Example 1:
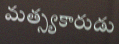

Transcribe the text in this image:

మత్స్యకారుడు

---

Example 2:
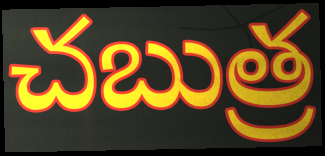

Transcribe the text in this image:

చబుత్ర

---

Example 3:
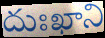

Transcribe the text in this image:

దుఃఖాని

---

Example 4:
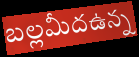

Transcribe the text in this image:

బల్లమీదఉన్న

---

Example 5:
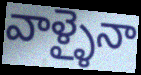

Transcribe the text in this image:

వాళ్ళైనా